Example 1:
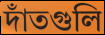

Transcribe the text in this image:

দাঁতগুলি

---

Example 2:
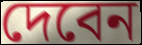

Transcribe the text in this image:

দেবেন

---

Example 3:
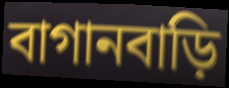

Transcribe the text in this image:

বাগানবাড়ি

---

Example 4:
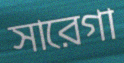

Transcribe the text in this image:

সারেগা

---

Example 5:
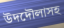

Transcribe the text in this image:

উদদৌলাসহ